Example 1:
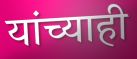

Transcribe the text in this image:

यांच्याही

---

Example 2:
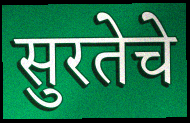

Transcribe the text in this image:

सुरतेचे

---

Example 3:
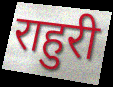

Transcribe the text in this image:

राहुरी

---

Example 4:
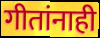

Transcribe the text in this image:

गीतांनाही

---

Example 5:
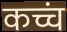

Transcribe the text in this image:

कच्चं